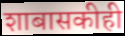
शाबासकीही